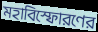
মহাবিস্ফোরণের